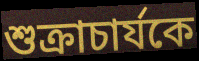
শুক্রাচার্যকে